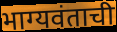
भाग्यवंताची